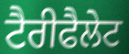
ਟੈਰੀਫੈਲੇਟ